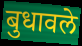
बुधावले